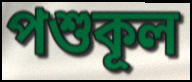
পশুকূল